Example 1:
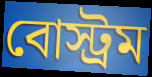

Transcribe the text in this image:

বোস্ট্রম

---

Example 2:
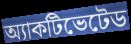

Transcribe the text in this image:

অ্যাকটিভেটেড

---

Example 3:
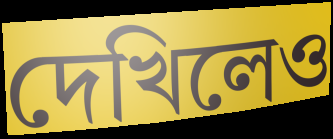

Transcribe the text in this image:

দেখিলেও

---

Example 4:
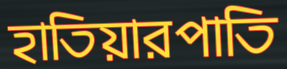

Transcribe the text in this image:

হাতিয়ারপাতি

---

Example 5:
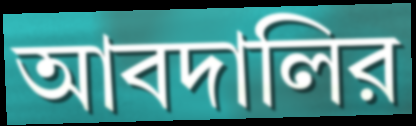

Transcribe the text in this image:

আবদালির